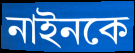
নাইনকে